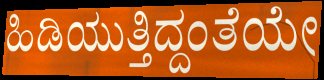
ಹಿಡಿಯುತ್ತಿದ್ದಂತೆಯೇ